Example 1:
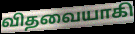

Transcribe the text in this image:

விதவையாகி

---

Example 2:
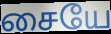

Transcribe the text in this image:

சையே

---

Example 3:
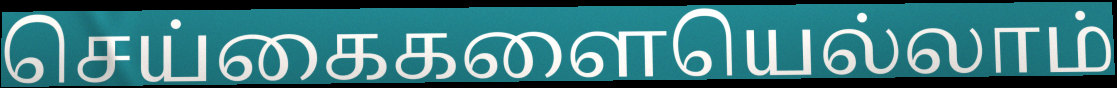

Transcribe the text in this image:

செய்கைகளையெல்லாம்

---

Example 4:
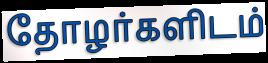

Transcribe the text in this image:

தோழர்களிடம்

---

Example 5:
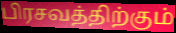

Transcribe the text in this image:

பிரசவத்திற்கும்